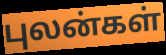
புலன்கள்